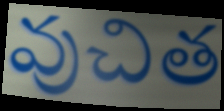
వుచిత